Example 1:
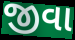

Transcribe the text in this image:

જીવા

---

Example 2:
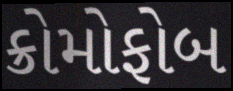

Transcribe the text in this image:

ક્રોમોફોબ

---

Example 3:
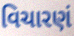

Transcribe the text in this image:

વિચારણં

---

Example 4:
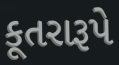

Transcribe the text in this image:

કૂતરારૂપે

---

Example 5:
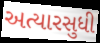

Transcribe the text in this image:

અત્યારસુધી